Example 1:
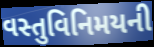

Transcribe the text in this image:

વસ્તુવિનિમયની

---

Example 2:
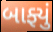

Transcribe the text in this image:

બાફ્યું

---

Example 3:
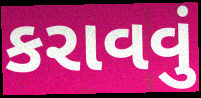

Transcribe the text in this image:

કરાવવું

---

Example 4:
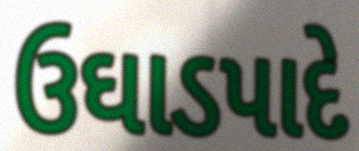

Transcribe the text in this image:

ઉઘાડપાદે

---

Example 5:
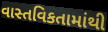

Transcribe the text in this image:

વાસ્તવિકતામાંથી